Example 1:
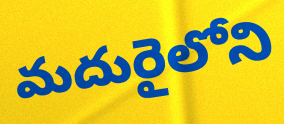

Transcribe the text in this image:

మదురైలోని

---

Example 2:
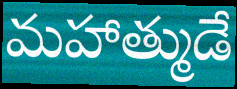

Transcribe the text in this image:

మహాత్ముడే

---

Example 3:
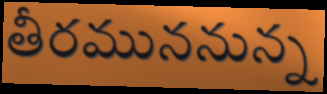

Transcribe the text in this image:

తీరముననున్న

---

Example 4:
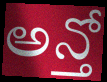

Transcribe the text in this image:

అన్తో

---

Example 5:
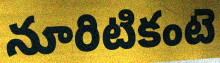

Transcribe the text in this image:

నూరిటికంటె